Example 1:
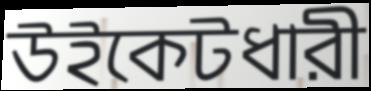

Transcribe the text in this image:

উইকেটধারী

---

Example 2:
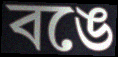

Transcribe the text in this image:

বঙে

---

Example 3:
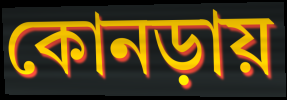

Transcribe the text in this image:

কোনড়ায়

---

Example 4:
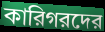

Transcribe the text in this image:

কারিগরদের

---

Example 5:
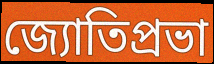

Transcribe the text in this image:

জ্যোতিপ্রভা